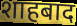
शाहबाद